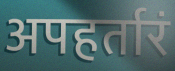
अपहर्तारं